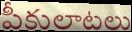
పీకులాటలు